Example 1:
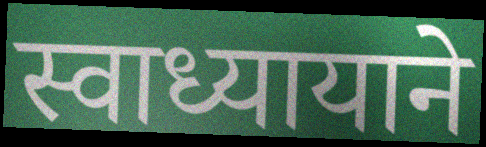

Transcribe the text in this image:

स्वाध्यायाने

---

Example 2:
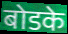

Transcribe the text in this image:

बोडके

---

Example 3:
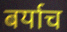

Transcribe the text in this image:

बर्याच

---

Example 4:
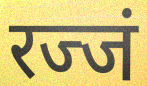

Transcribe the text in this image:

रज्जं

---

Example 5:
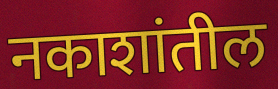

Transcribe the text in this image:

नकाशांतील